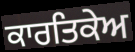
ਕਾਰਤਿਕੇਅ